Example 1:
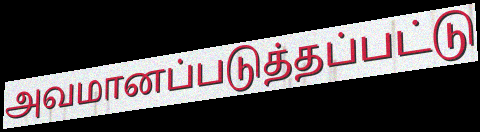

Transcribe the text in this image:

அவமானப்படுத்தப்பட்டு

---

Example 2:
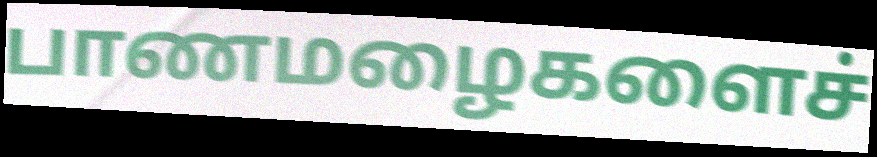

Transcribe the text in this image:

பாணமழைகளைச்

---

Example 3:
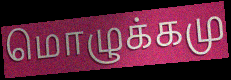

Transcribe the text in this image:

மொழுக்கமு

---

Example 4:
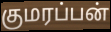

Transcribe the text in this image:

குமரப்பன்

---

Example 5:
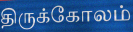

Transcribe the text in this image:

திருக்கோலம்